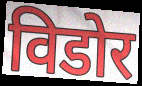
विडोर